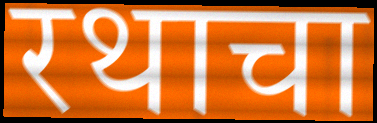
रथाचा